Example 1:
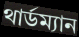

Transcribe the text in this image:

থার্ডম্যান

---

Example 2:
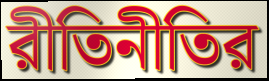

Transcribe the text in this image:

রীতিনীতির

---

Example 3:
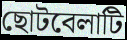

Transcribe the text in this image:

ছোটবেলাটি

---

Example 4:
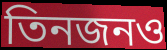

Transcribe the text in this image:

তিনজনও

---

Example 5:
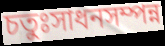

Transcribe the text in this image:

চতুঃসাধনসম্পন্ন